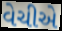
વેચીએ